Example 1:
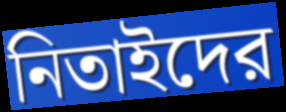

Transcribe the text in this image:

নিতাইদের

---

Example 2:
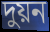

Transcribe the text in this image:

দুয়ন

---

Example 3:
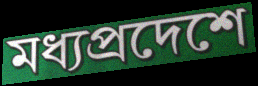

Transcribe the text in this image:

মধ্যপ্রদেশে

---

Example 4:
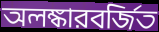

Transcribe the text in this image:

অলঙ্কারবর্জিত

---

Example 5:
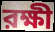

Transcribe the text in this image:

রক্ষী